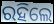
ରହିଲେ